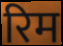
रिम